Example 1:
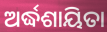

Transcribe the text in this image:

ଅର୍ଦ୍ଧଶାୟିତା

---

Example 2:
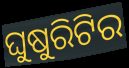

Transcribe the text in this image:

ଘୁଷୁରିଟିର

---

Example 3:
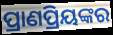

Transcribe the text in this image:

ପ୍ରାଣପ୍ରିୟଙ୍କର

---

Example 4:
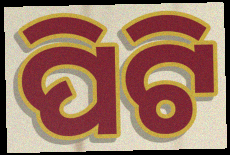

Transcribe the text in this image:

ପିଟି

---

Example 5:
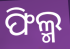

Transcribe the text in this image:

ଫିଲ୍ମ